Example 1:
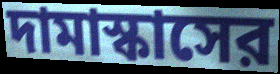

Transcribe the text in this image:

দামাস্কাসের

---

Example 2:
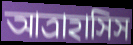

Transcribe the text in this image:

আত্রাহাসিস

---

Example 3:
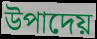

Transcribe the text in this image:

উপাদেয়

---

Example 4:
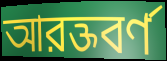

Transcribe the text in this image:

আরক্তবর্ণ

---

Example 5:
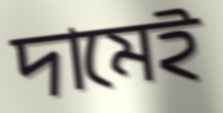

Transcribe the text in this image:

দামেই